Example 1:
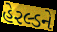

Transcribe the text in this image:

હેરલ્ડને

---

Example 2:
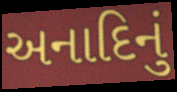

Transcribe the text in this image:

અનાદિનું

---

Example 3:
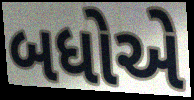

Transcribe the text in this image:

બધોએ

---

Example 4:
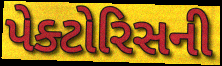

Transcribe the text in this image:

પેક્ટોરિસની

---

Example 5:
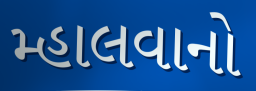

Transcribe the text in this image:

મ્હાલવાનો